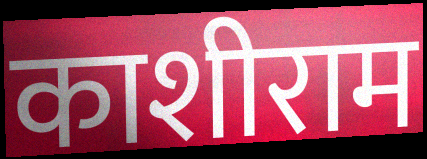
काशीराम